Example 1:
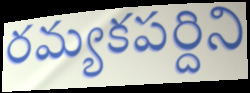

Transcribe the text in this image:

రమ్యకపర్దిని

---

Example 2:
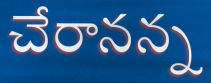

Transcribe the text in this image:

చేరానన్న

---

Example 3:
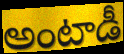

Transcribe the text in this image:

అంటాడీ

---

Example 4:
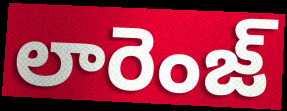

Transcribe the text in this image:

లారెంజ్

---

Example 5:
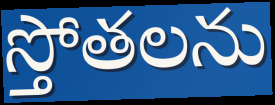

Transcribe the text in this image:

స్తోతలను